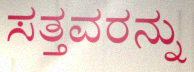
ಸತ್ತವರನ್ನು